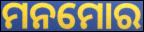
ମନମୋର